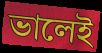
ভালেই